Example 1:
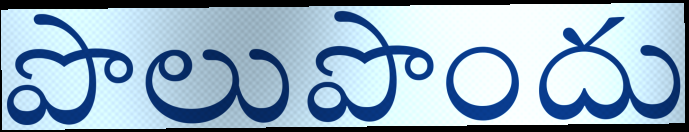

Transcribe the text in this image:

పొలుపొందు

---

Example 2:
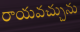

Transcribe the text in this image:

రాయవచ్చును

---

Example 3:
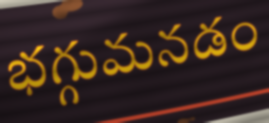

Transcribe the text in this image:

భగ్గుమనడం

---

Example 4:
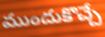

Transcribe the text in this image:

ముందుకొచ్చే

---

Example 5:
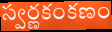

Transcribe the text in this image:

స్వర్ణకంకణం